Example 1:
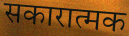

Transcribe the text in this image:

सकारात्मक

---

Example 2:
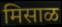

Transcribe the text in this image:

मिसाळ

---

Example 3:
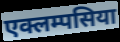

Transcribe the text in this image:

एक्लम्पसिया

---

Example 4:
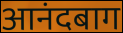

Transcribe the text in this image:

आनंदबाग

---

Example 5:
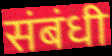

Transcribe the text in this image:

संबंधी